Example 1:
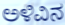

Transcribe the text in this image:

ಅಳಿವಿನ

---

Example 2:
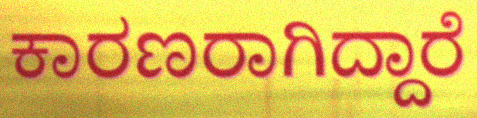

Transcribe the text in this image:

ಕಾರಣರಾಗಿದ್ದಾರೆ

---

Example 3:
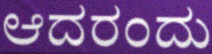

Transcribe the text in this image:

ಆದರಂದು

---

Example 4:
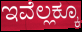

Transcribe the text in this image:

ಇವೆಲ್ಲಕ್ಕೂ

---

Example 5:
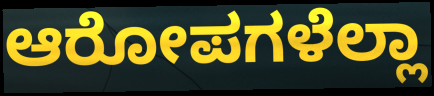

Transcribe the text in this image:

ಆರೋಪಗಳೆಲ್ಲಾ